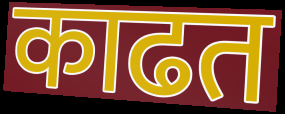
काढत